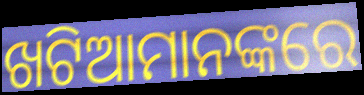
ଖଟିଆମାନଙ୍କରେ